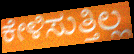
ಕೇಳಿಸುತ್ತಿಲ್ಲ